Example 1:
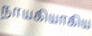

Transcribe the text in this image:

நாயகியாகிய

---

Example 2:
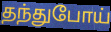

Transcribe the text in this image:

தந்துபோய்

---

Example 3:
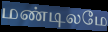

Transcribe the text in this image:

மண்டிலமே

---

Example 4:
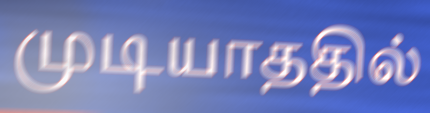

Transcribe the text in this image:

முடியாததில்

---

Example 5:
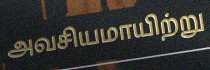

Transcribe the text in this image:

அவசியமாயிற்று